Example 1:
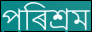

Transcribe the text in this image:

পৰিশ্ৰম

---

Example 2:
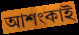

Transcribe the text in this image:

আশংকাই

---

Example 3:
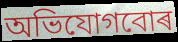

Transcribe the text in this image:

অভিযোগবোৰ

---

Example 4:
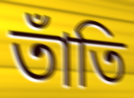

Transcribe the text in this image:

তাঁতি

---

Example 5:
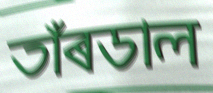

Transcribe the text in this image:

তাঁৰডাল